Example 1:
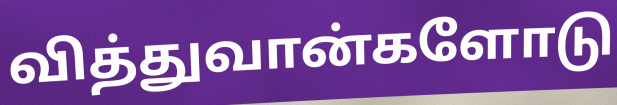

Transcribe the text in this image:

வித்துவான்களோடு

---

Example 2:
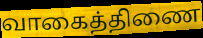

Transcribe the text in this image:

வாகைத்திணை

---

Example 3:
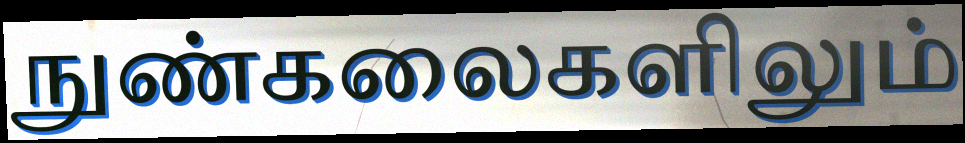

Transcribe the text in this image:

நுண்கலைகளிலும்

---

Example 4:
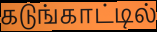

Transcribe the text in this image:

கடுங்காட்டில்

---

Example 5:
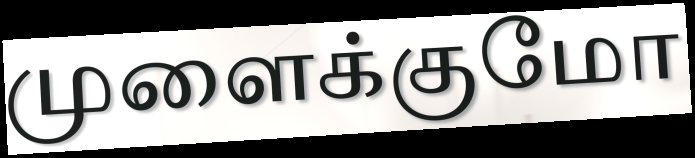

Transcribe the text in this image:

முளைக்குமோ